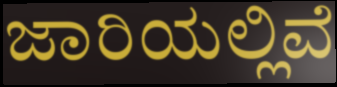
ಜಾರಿಯಲ್ಲಿವೆ